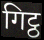
गिट्ठ